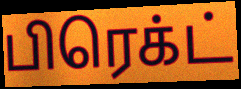
பிரெக்ட்